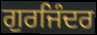
ਗੁਰਜਿੰਦਰ